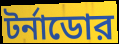
টর্নাডোর